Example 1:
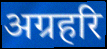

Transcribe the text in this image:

अग्रहरि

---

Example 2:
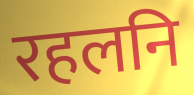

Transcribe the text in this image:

रहलनि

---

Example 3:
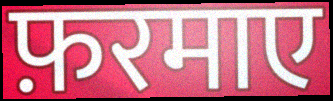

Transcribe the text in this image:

फ़रमाए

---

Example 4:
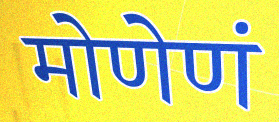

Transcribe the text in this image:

मोणेणं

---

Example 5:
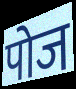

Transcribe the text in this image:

पोज